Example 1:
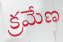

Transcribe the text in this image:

క్రమేణ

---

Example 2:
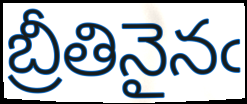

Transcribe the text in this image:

బ్రీతినైనఁ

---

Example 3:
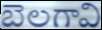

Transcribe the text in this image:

బెలగావి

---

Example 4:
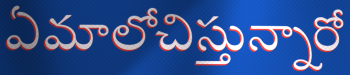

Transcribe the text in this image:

ఏమాలోచిస్తున్నారో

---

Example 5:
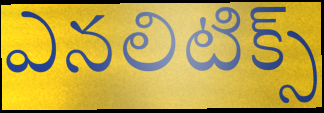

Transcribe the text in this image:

ఎనలిటిక్స్